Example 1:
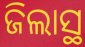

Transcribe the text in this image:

ଜିଲାସ୍ଥ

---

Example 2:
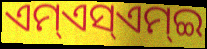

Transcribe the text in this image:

ଏମ୍ଏସ୍ଏମ୍ଇ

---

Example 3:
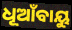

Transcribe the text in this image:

ଧୂଆଁବାୟୁ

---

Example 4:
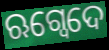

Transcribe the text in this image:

ଋଗ୍ଵେଦେ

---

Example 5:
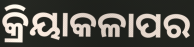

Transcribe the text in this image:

କ୍ରିୟାକଳାପର